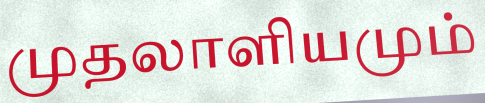
முதலாளியமும்